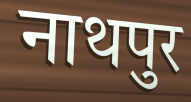
नाथपुर